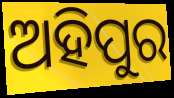
ଅହିପୁର